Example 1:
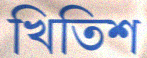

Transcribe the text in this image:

খিতিশ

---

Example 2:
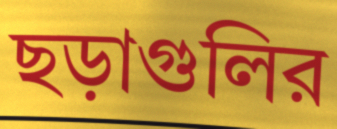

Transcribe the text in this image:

ছড়াগুলির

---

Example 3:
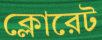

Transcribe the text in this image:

ক্লোরেট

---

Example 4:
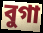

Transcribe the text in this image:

বুগা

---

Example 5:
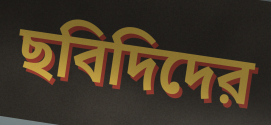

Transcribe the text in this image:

ছবিদিদের